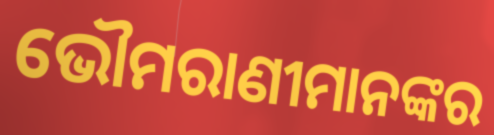
ଭୌମରାଣୀମାନଙ୍କର